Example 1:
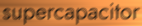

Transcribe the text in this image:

supercapacitor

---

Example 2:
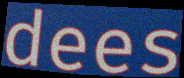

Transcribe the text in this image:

dees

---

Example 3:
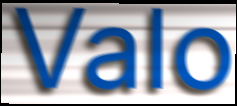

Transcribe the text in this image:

Valo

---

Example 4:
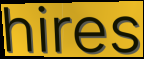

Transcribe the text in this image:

hires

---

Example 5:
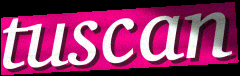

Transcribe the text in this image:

tuscan